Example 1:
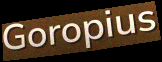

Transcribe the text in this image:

Goropius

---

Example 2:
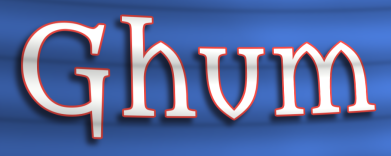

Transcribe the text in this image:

Ghum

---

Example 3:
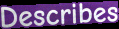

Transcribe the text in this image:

Describes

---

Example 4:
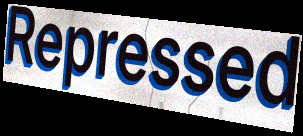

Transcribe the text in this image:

Repressed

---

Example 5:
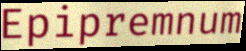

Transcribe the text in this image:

Epipremnum